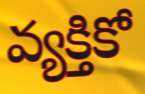
వ్యక్తికో